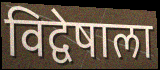
विद्वेषाला